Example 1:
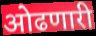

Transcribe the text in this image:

ओढणारी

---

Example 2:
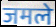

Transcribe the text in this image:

जमले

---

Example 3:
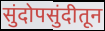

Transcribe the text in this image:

सुंदोपसुंदीतून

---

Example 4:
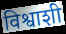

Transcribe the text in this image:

विश्वाशी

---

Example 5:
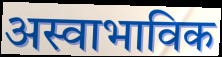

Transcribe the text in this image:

अस्वाभाविक